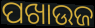
ପଖାଉଜ